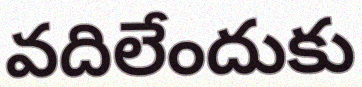
వదిలేందుకు